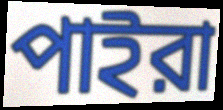
পাইরা